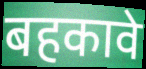
बहकावे